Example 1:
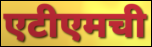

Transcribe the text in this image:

एटीएमची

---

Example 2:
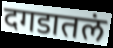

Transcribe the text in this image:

दगडातलं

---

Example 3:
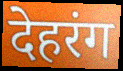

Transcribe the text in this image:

देहरंग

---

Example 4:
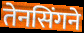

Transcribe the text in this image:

तेनसिंगने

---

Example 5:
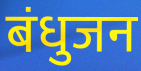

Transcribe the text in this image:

बंधुजन